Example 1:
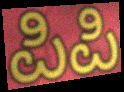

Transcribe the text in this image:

ಪಿಪಿ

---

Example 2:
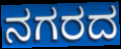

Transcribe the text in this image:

ನಗರದ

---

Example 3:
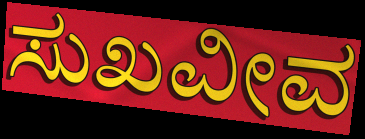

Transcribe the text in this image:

ಸುಖವೀವ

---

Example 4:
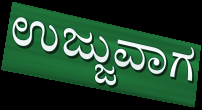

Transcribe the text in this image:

ಉಜ್ಜುವಾಗ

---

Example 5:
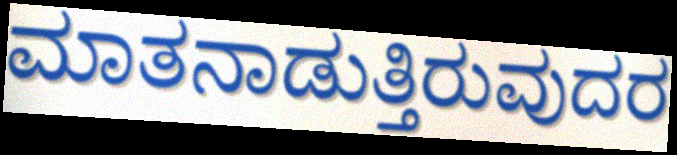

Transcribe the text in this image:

ಮಾತನಾಡುತ್ತಿರುವುದರ